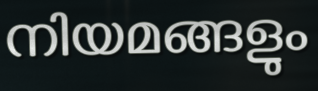
നിയമങ്ങളും